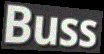
Buss